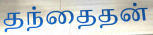
தந்தைதன்